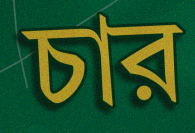
চার